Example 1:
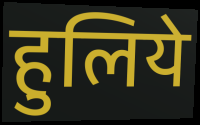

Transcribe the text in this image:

हुलिये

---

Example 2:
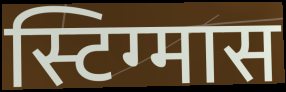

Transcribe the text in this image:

स्टिग्मास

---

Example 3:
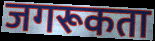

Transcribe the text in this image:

जगरूकता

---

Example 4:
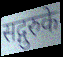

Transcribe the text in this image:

सद्गुरुके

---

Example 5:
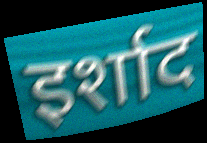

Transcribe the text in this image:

इर्शाद